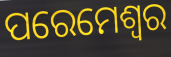
ପରେମେଶ୍ଵର